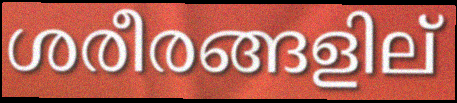
ശരീരങ്ങളില്